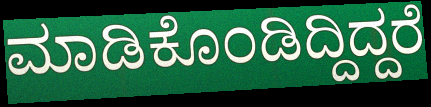
ಮಾಡಿಕೊಂಡಿದ್ದಿದ್ದರೆ